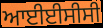
ਆਈਈਸੀਸੀ